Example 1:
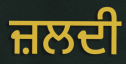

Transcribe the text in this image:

ਜ਼ਲਦੀ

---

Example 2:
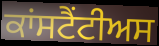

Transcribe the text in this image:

ਕਾਂਸਟੈਂਟੀਅਸ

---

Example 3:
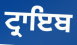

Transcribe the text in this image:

ਟ੍ਰਾਇਬ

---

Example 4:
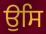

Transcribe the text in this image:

ਉਸਿ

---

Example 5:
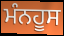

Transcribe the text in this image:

ਮੰਨਹੂਸ